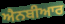
ਐਨਬੀਆਰ